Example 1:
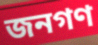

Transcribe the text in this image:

জনগণ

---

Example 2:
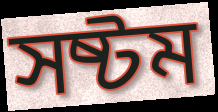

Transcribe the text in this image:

সষ্টম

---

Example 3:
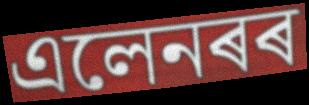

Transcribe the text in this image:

এলেনৰৰ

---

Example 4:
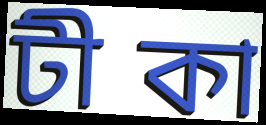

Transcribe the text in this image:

টীকা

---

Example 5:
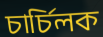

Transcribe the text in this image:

চাৰ্চিলক